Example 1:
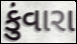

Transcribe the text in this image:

કુંવારા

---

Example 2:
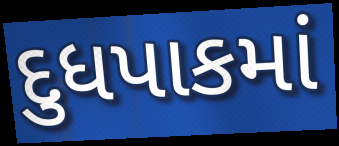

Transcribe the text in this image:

દુધપાકમાં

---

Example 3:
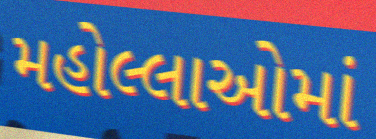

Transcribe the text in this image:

મહોલ્લાઓમાં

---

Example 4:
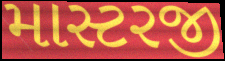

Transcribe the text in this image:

માસ્ટરજી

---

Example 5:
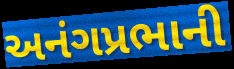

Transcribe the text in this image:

અનંગપ્રભાની